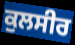
ਕੁਲਸੀਰ